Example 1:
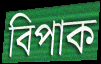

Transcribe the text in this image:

বিপাক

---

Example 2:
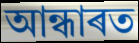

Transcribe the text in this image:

আন্ধাৰত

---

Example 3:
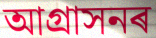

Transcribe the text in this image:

আগ্ৰাসনৰ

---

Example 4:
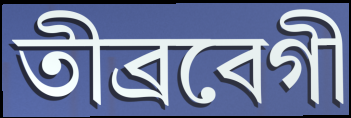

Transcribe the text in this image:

তীব্ৰবেগী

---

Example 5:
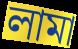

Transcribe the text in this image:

লামা